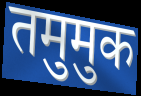
तमुमुक